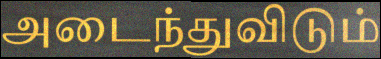
அடைந்துவிடும்